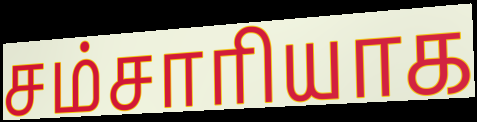
சம்சாரியாக